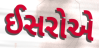
ઈસરોએ